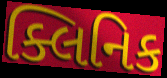
ક્લિનિક